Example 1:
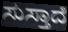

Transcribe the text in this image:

ಸುಸ್ತಾದೆ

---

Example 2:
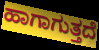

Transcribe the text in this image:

ಹಾಗಾಗುತ್ತದೆ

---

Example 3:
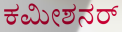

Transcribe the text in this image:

ಕಮೀಶನರ್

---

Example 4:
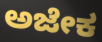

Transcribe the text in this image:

ಅಜೇಕ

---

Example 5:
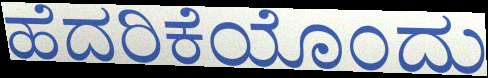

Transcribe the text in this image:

ಹೆದರಿಕೆಯೊಂದು